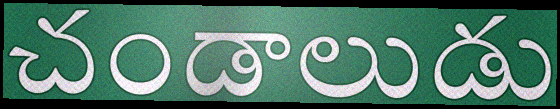
చండాలుడు